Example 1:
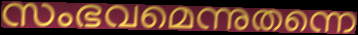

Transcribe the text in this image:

സംഭവമെന്നുതന്നെ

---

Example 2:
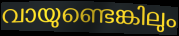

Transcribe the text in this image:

വായുണ്ടെങ്കിലും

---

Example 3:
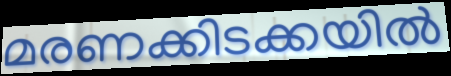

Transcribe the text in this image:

മരണക്കിടക്കയിൽ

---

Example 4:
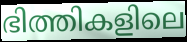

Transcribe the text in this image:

ഭിത്തികളിലെ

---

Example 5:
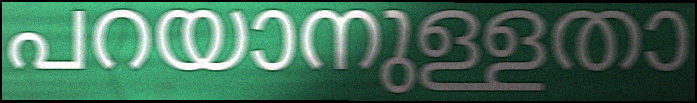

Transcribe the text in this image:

പറയാനുള്ളതാ